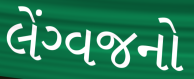
લેંગ્વજનો